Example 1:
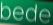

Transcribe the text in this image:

bede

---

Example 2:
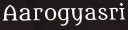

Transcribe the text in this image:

Aarogyasri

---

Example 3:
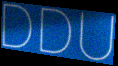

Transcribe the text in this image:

DDU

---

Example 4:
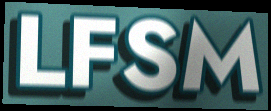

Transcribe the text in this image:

LFSM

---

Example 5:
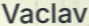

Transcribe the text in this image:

Vaclav